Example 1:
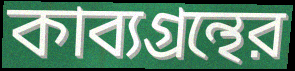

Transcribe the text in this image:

কাব্যগ্রন্থের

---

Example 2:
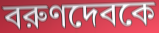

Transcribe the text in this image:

বরুণদেবকে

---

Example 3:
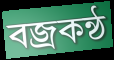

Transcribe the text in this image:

বজ্রকন্ঠ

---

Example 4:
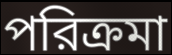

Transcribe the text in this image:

পরিক্রমা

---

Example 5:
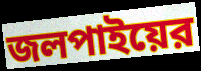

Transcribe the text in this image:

জলপাইয়ের